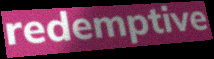
redemptive